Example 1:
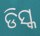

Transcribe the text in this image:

ଡିସ୍କ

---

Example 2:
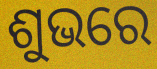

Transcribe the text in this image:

ଶୁଭରେ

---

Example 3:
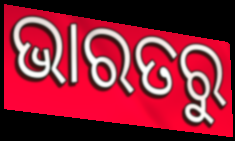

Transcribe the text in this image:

ଭାରତରୁ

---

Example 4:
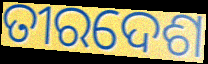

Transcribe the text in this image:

ତୀରଦେଶ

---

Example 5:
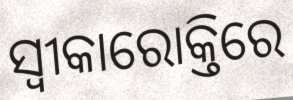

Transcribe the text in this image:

ସ୍ଵୀକାରୋକ୍ତିରେ